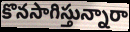
కొనసాగిస్తున్నారా